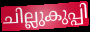
ചില്ലുകുപ്പി